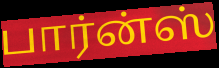
பார்ன்ஸ்